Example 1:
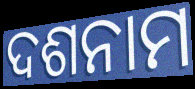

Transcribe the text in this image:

ଦଶନାମ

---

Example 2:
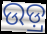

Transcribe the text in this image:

ଉଡ଼୍ର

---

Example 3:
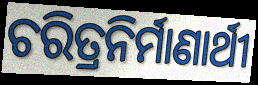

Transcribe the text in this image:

ଚରିତ୍ରନିର୍ମାଣାର୍ଥୀ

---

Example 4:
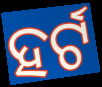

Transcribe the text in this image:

ହର୍ଟ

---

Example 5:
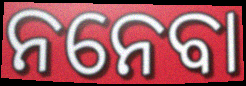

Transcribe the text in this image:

ନନେବା